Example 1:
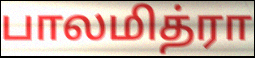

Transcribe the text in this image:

பாலமித்ரா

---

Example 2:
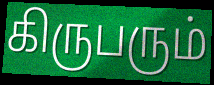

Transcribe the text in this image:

கிருபரும்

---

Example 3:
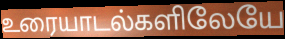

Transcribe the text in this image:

உரையாடல்களிலேயே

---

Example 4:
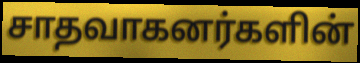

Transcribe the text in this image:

சாதவாகனர்களின்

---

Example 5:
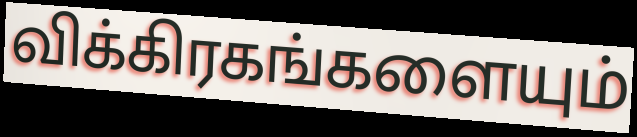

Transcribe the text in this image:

விக்கிரகங்களையும்